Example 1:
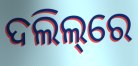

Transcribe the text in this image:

ଦଲିଲ୍‌ରେ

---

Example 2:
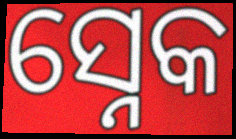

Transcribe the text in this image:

ସ୍ନେକ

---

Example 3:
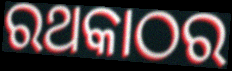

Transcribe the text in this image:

ରଥକାଠର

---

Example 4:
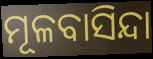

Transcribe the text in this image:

ମୂଳବାସିନ୍ଦା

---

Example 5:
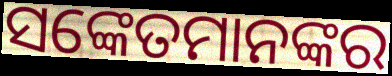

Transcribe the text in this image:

ସଙ୍କେତମାନଙ୍କର